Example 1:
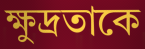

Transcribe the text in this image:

ক্ষুদ্রতাকে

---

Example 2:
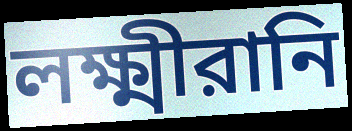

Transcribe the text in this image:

লক্ষ্মীরানি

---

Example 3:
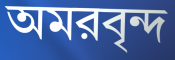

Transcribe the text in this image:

অমরবৃন্দ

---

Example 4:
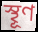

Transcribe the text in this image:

স্থূণ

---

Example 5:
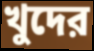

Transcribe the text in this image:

খুদের